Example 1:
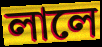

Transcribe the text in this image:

লালে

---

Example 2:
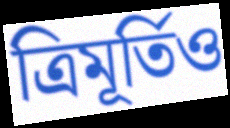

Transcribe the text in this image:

ত্ৰিমূৰ্তিও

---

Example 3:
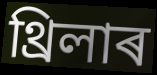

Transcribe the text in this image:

থ্ৰিলাৰ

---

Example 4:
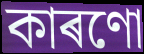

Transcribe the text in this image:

কাৰণো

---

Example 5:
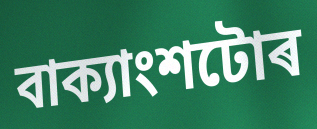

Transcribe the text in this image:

বাক্যাংশটোৰ